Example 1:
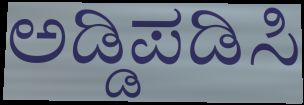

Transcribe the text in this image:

ಅಡ್ಡಿಪಡಿಸಿ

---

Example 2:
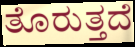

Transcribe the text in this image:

ತೊರುತ್ತದೆ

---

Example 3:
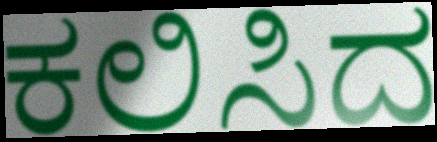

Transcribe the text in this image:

ಕಲಿಸಿದ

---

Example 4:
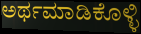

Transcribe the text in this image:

ಅರ್ಥಮಾಡಿಕೊಳ್ಳಿ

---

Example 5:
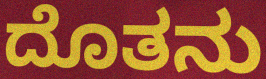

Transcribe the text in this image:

ದೊತನು